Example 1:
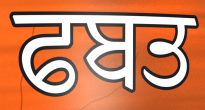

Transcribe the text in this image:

ਫਬਤ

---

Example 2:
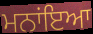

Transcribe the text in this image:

ਮਨਾਂਇਆ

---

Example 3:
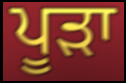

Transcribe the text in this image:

ਪੂੜਾ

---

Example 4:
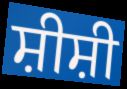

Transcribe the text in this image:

ਸ਼ੀਸ਼ੀ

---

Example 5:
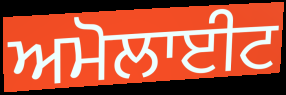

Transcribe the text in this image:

ਅਮੋਲਾਈਟ